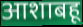
आशाबहू